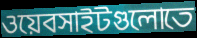
ওয়েবসাইটগুলোতে